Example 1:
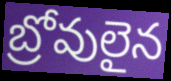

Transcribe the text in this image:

బ్రోవులైన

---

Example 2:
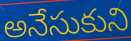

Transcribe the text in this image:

అనేసుకుని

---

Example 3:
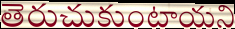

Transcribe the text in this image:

తెరుచుకుంటాయని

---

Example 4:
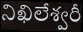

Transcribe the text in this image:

నిఖిలేశ్వరీ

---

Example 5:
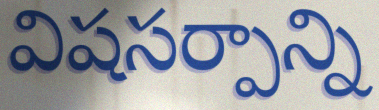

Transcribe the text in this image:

విషసర్పాన్ని